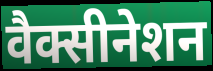
वैक्सीनेशन